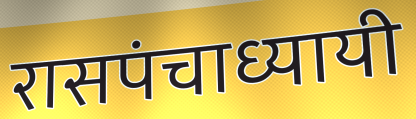
रासपंचाध्यायी